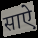
साऐ